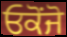
ਓਕੋਂਜੋ